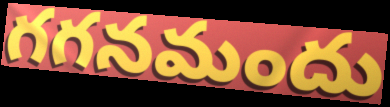
గగనమందు